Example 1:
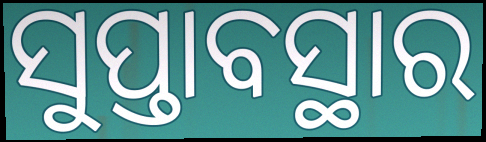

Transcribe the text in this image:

ସୁପ୍ତାବସ୍ଥାର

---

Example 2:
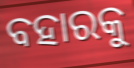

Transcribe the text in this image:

ବହାରକୁ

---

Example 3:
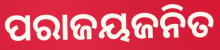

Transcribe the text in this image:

ପରାଜୟଜନିତ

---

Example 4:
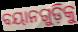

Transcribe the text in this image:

ବୟାନଗୁଡ଼ିକୁ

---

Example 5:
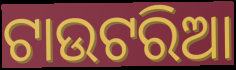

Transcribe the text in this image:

ଟାଉଟରିଆ